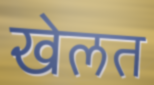
खेलत